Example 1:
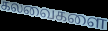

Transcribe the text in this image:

கலவைகளை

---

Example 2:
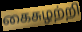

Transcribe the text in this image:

கைசுழற்றி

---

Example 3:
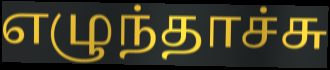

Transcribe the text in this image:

எழுந்தாச்சு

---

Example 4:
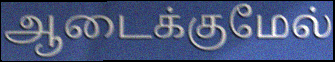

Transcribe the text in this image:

ஆடைக்குமேல்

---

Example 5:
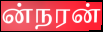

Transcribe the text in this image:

ன்நரன்